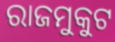
ରାଜମୁକୁଟ